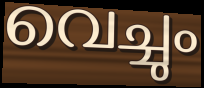
വെച്ചും